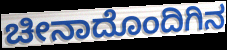
ಚೀನಾದೊಂದಿಗಿನ